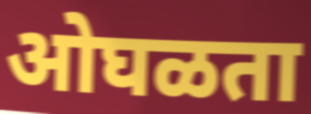
ओघळता